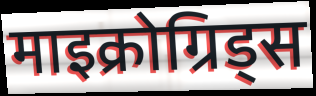
माइक्रोग्रिड्स